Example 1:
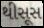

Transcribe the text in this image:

થીસૂસ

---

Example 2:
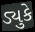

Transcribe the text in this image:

ડ્યુકે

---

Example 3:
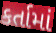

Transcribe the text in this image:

કર્તામાં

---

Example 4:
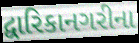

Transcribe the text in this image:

દ્વારિકાનગરીના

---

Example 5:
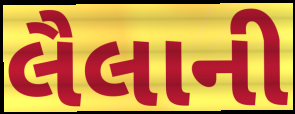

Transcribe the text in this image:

લૈલાની